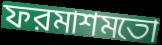
ফরমাশমতো